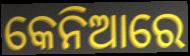
କେନିଆରେ